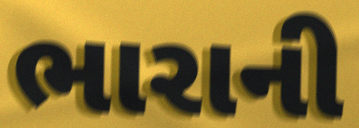
ભારાની